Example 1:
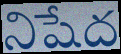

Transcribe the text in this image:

నిషేద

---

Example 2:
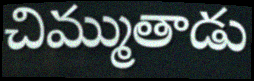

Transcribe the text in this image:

చిమ్ముతాడు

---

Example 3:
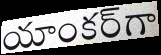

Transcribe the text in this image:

యాంకర్‌గా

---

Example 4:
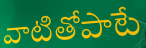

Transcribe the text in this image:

వాటితోపాటే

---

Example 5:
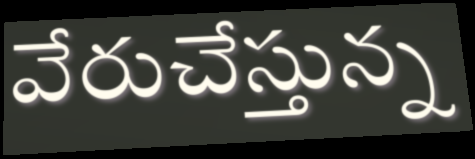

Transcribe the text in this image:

వేరుచేస్తున్న